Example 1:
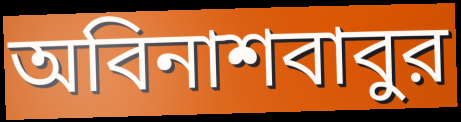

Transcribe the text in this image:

অবিনাশবাবুর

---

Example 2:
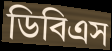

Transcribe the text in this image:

ডিবিএস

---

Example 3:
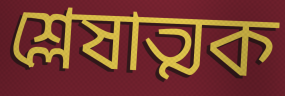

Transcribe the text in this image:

শ্লেষাত্মক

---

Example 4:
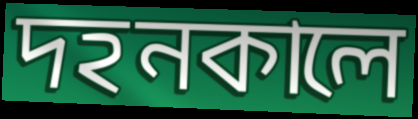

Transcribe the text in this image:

দহনকালে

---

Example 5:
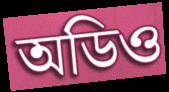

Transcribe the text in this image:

অডিও